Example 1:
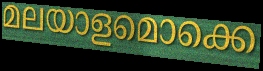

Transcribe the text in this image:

മലയാളമൊക്കെ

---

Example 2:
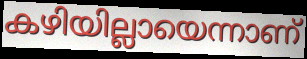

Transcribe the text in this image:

കഴിയില്ലായെന്നാണ്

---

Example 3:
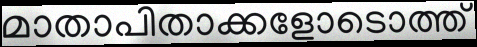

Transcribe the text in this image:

മാതാപിതാക്കളോടൊത്ത്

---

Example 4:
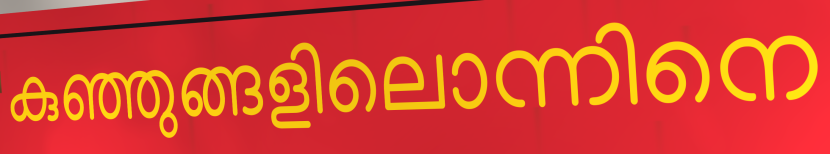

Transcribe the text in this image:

കുഞ്ഞുങ്ങളിലൊന്നിനെ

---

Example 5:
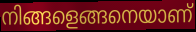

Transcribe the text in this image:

നിങ്ങളെങ്ങനെയാണ്